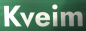
Kveim